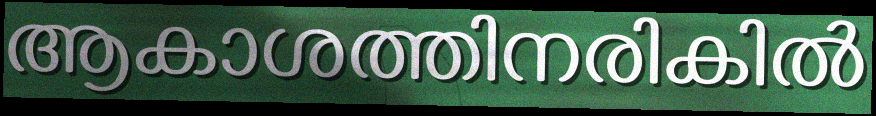
ആകാശത്തിനരികിൽ